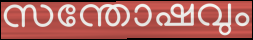
സന്തോഷവും